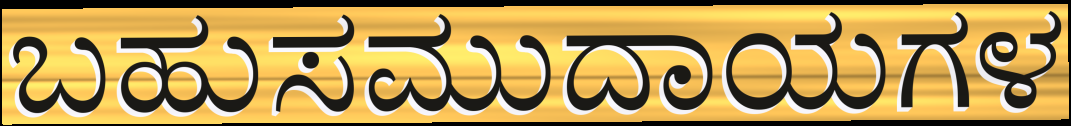
ಬಹುಸಮುದಾಯಗಳ